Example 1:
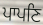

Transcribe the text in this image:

ਪਾਪਣਿ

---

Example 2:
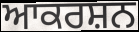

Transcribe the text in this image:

ਆਕਰਸ਼ਨ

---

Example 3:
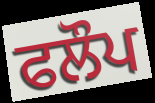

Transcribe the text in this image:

ਫਲੌਪ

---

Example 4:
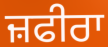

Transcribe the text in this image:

ਜ਼ਫੀਰਾ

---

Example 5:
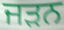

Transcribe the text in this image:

ਜੜਨ